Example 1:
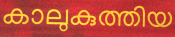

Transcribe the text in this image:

കാലുകുത്തിയ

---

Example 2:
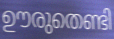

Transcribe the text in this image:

ഊരുതെണ്ടി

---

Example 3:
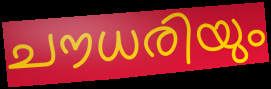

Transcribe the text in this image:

ചൗധരിയും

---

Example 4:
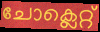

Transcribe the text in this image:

ചോക്ലെറ്റ്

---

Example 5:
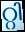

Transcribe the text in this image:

റ്റി